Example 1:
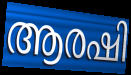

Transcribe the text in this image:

ആരഷി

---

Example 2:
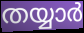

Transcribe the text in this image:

തയ്യാർ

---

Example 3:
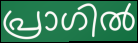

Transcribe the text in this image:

പ്രാഗിൽ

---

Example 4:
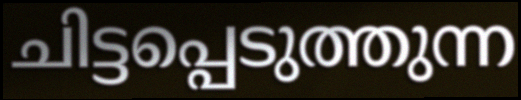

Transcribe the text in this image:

ചിട്ടപ്പെടുത്തുന്ന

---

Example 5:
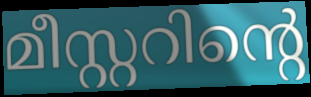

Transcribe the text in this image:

മീസ്റ്ററിന്റെ